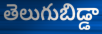
తెలుగుబిడ్డా